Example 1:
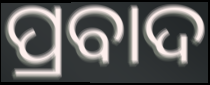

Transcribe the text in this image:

ପ୍ରବାଦ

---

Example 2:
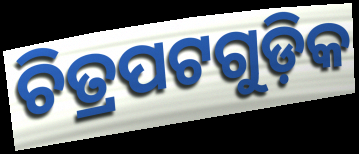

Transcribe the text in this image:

ଚିତ୍ରପଟଗୁଡ଼ିକ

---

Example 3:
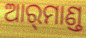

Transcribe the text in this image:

ଆର୍‌ମାଣ୍ଡ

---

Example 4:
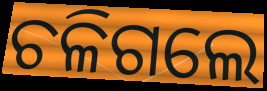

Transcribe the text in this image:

ଚଳିଗଲେ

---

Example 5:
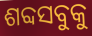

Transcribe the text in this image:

ଶବ୍ଦସବୁକୁ